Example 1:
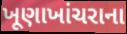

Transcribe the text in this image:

ખૂણાખાંચરાના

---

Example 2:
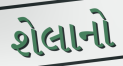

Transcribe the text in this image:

શેલાનો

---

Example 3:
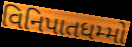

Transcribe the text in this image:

વિનિપાતધમ્મો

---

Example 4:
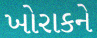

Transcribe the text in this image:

ખોરાકને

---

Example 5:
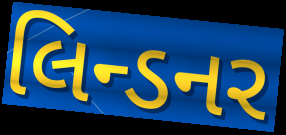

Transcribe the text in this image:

લિન્ડનર